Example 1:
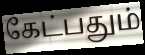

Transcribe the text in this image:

கேட்பதும்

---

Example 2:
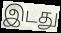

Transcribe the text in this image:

இடது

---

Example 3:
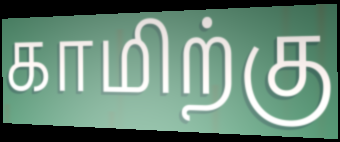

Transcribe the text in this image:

காமிற்கு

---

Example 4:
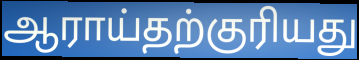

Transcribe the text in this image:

ஆராய்தற்குரியது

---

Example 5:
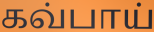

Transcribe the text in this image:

கவ்பாய்